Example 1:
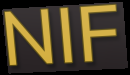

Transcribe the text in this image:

NIF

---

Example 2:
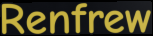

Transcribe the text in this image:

Renfrew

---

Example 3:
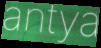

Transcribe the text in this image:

antya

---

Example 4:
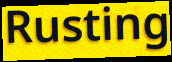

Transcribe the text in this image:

Rusting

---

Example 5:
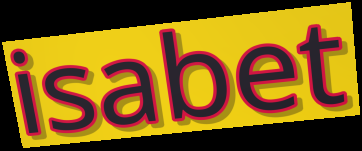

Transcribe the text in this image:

isabet